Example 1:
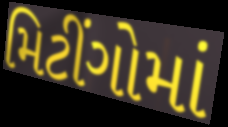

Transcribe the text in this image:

મિટીંગોમાં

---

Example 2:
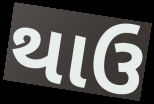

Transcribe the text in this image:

થાઉ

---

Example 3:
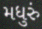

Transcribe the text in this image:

મધુરું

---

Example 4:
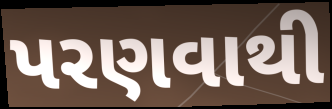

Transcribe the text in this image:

પરણવાથી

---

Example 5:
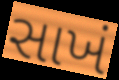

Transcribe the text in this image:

સાખં